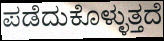
ಪಡೆದುಕೊಳ್ಳುತ್ತದೆ